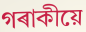
গৰাকীয়ে